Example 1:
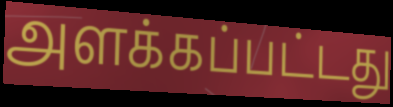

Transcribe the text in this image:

அளக்கப்பட்டது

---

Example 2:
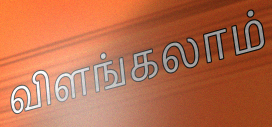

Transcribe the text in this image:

விளங்கலாம்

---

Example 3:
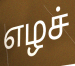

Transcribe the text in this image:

எழச்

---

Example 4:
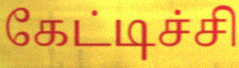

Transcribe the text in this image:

கேட்டிச்சி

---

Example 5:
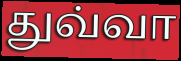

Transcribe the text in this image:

துவ்வா